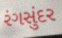
રંગસુંદર